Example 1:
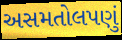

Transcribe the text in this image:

અસમતોલપણું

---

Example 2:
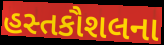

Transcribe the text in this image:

હસ્તકૌશલના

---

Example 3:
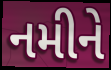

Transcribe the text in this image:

નમીને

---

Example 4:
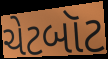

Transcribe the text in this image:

ચેટબૉટ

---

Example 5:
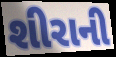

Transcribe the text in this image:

શીરાની